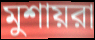
মুশায়রা